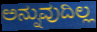
ಅನ್ನುವುದಿಲ್ಲ